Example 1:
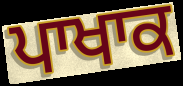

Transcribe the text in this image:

ਪਾਖਾਕ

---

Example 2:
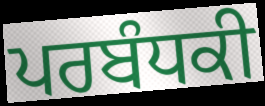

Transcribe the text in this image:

ਪਰਬੰਧਕੀ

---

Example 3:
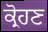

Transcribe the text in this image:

ਕ੍ਰੋਹਣ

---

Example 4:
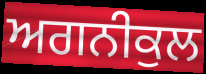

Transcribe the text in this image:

ਅਗਨੀਕੁਲ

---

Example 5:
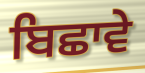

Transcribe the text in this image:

ਬਿਛਾਵੇ